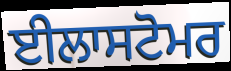
ਈਲਾਸਟੋਮਰ